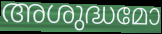
അശുദ്ധമോ